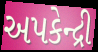
અપકેન્દ્રી